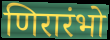
णिरारंभो